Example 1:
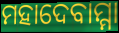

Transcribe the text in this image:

ମହାଦେବାମ୍ମା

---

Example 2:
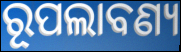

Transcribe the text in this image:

ରୂପଲାବଣ୍ୟ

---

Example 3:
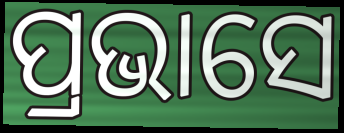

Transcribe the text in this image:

ପ୍ରଭାସେ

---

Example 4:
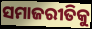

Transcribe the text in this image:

ସମାଜରୀତିକୁ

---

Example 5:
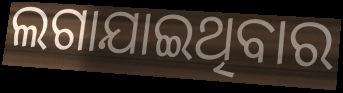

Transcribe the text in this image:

ଲଗାଯାଇଥିବାର